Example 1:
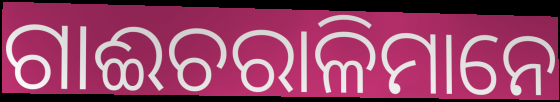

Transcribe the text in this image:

ଗାଈଚରାଳିମାନେ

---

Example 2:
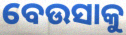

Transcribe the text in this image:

ବେଉସାକୁ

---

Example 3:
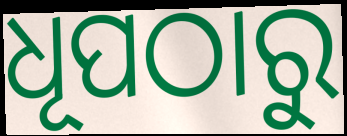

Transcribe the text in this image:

ଧୂପଠାରୁ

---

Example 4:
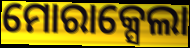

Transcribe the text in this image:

ମୋରାକ୍ସେଲା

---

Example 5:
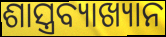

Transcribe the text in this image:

ଶାସ୍ତ୍ରବ୍ୟାଖ୍ୟାନ